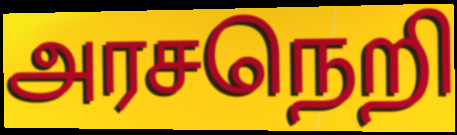
அரசநெறி